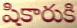
షికారుకి